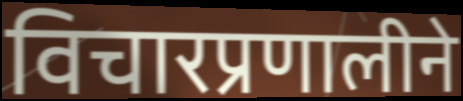
विचारप्रणालीने